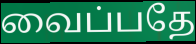
வைப்பதே